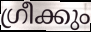
ഗ്രീക്കും